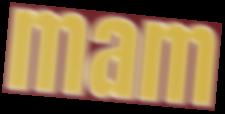
mam